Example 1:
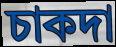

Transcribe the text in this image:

চাকদা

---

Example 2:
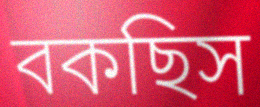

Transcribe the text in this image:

বকছিস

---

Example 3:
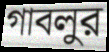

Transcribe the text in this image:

গাবলুর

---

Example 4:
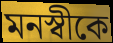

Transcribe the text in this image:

মনস্বীকে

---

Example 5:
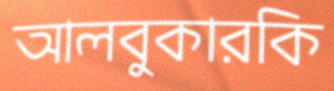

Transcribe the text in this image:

আলবুকারকি